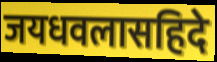
जयधवलासहिदे